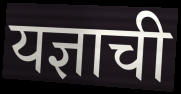
यज्ञाची